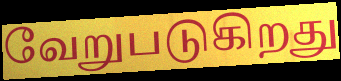
வேறுபடுகிறது